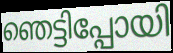
ഞെട്ടിപ്പോയി